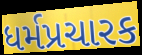
ધર્મપ્રચારક